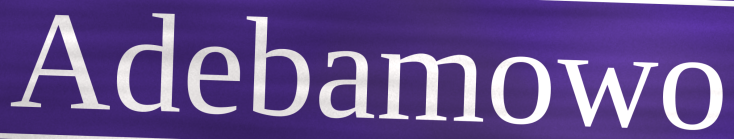
Adebamowo